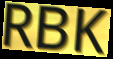
RBK